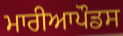
ਮਾਰੀਆਪੌਡਸ